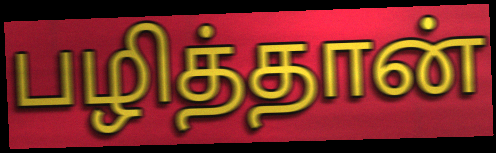
பழித்தான்